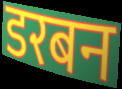
डरबन